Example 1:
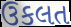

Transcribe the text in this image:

ઉકલત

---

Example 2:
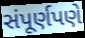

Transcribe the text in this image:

સંપૂર્ણપણે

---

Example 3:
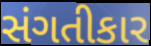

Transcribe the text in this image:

સંગતીકાર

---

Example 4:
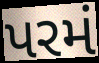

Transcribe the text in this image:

પરમં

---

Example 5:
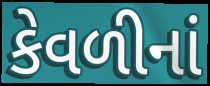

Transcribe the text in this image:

કેવળીનાં